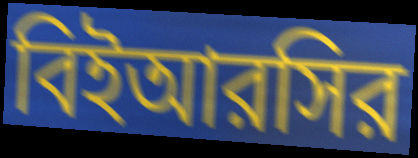
বিইআরসির